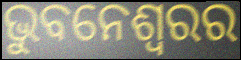
ଭୁବନେଶ୍ୱରର